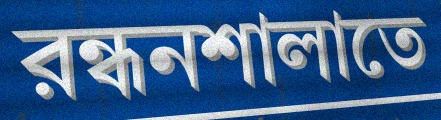
রন্ধনশালাতে